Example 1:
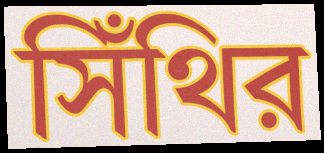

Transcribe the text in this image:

সিঁথির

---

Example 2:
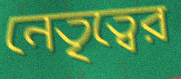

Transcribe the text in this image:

নেতৃত্বের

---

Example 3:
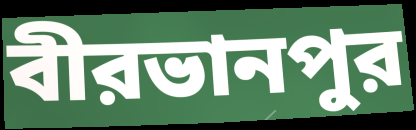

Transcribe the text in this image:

বীরভানপুর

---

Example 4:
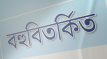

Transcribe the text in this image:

বহুবিতর্কিত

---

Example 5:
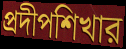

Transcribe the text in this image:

প্রদীপশিখার